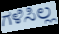
ಗಳಿಸಿಲ್ಲ